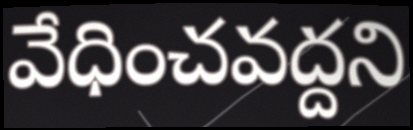
వేధించవద్దని